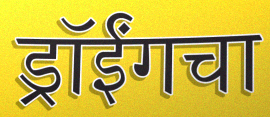
ड्रॉईंगचा